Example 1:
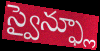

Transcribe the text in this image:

స్వైన్ఫ్లూ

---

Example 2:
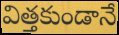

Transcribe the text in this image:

విత్తకుండానే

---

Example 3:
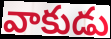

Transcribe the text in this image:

వాకుడు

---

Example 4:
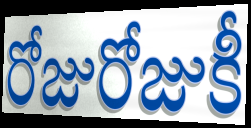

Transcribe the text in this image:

రోజురోజుకీ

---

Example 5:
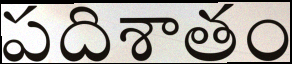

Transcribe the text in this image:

పదిశాతం